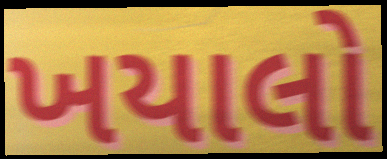
ખયાલો